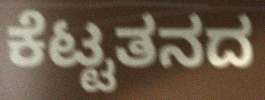
ಕೆಟ್ಟತನದ